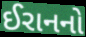
ઈરાનનો